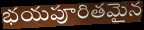
భయపూరితమైన